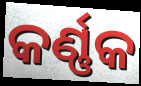
କର୍ଣ୍ଣକ